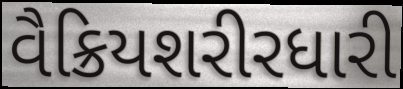
વૈક્રિયશરીરધારી